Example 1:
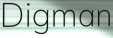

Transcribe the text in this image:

Digman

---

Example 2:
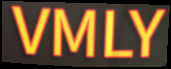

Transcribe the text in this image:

VMLY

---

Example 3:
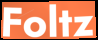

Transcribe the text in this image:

Foltz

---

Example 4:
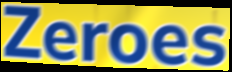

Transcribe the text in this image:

Zeroes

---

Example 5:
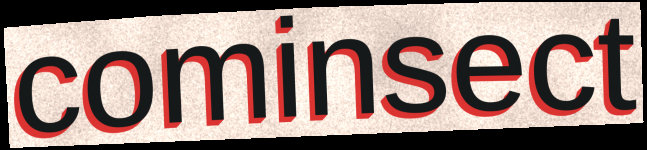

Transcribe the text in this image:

cominsect